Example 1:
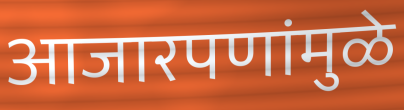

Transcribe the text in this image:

आजारपणांमुळे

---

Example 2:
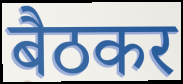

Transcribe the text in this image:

बैठकर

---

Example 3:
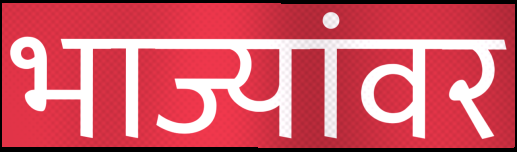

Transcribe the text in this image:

भाज्यांवर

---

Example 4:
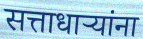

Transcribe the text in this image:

सत्ताधाऱ्यांना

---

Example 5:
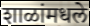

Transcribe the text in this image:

शाळांमधले